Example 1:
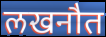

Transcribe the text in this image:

लखनौत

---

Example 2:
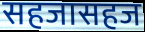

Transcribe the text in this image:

सहजासहज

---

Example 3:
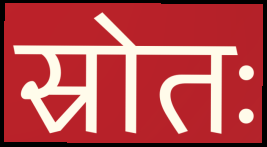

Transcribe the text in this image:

स्रोतः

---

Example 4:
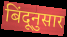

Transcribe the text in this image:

बिंदूनुसार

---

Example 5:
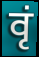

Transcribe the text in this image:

वृं